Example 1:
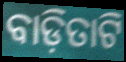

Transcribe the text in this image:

ବାଡ଼ିତାଟି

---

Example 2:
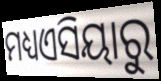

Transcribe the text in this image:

ମଧ୍ୟଏସିୟାରୁ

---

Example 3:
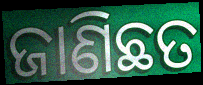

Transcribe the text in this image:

ଜାଣିଛତ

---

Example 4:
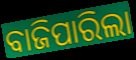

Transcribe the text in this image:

ବାଜିପାରିଲା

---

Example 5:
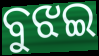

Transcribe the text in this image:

ବୁଝଇ